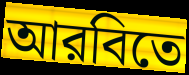
আরবিতে